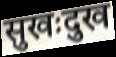
सुखःदुख